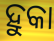
ହୁକା